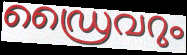
ഡ്രൈവറും